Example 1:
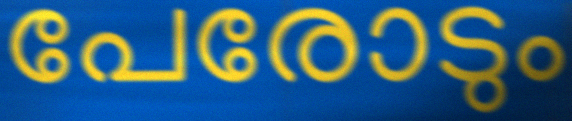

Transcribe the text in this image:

പേരോടും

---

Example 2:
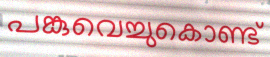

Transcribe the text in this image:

പങ്കുവെച്ചുകൊണ്ട്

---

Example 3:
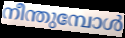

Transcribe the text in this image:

നീന്തുമ്പോൾ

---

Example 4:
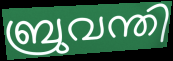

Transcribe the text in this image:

ബ്രുവന്തി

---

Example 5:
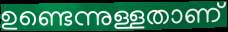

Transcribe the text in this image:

ഉണ്ടെന്നുള്ളതാണ്